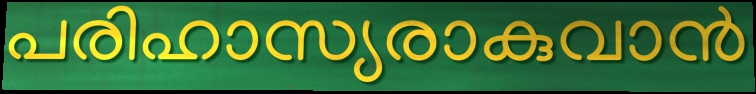
പരിഹാസ്യരാകുവാൻ